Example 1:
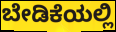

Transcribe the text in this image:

ಬೇಡಿಕೆಯಲ್ಲಿ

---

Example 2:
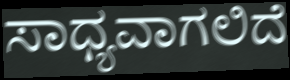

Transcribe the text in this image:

ಸಾಧ್ಯವಾಗಲಿದೆ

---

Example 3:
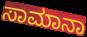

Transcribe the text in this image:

ಸಾಮಾನಾ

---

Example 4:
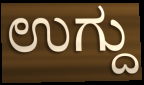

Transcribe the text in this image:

ಉಗ್ದು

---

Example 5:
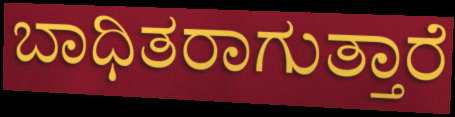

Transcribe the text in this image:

ಬಾಧಿತರಾಗುತ್ತಾರೆ